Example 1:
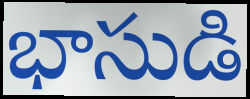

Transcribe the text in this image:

భాసుడి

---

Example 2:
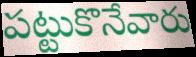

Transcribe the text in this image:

పట్టుకొనేవారు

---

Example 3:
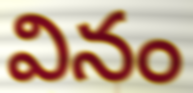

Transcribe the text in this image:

వినం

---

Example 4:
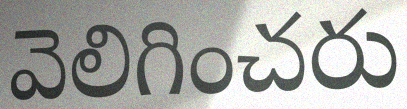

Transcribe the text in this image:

వెలిగించరు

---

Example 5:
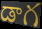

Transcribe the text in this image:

డాగ